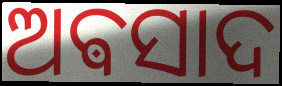
ଅଵସାଦ